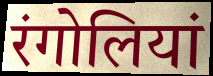
रंगोलियां